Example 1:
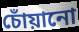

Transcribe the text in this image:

চোঁয়ানো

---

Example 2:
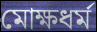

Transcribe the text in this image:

মোক্ষধর্ম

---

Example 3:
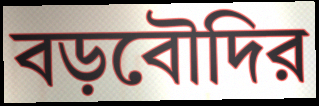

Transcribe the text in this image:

বড়বৌদির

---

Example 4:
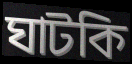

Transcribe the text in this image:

ঘাটকি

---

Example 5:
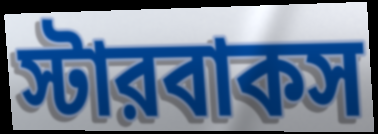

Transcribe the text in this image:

স্টারবাকস